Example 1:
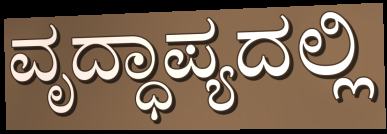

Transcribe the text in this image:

ವೃದ್ಧಾಪ್ಯದಲ್ಲಿ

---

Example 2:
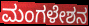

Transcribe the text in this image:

ಮಂಗಳೇಶನ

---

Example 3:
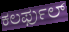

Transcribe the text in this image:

ಕಲರ್ಫುಲ್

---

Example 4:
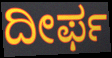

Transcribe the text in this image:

ದೀರ್ಫ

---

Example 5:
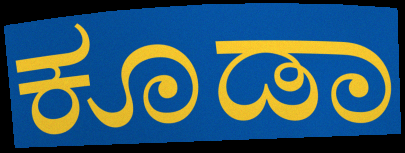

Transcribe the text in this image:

ಕೂಡಾ